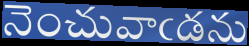
నెంచువాఁడను